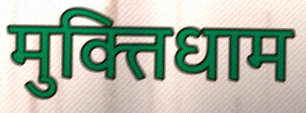
मुक्तिधाम